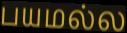
பயமல்ல